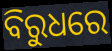
ବିରୁଧରେ